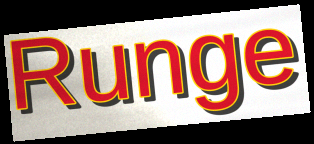
Runge